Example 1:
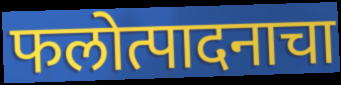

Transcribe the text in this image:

फलोत्पादनाचा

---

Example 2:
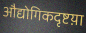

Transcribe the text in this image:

औद्योगिकदृष्टय़ा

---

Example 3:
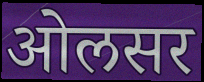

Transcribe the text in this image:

ओलसर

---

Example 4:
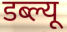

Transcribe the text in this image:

डब्ल्यू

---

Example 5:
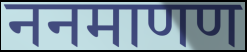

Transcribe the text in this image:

ननमाणण